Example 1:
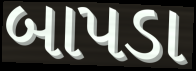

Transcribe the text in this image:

બાપડા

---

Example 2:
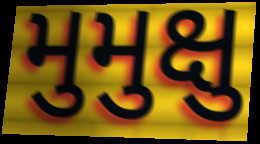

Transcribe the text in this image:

મુમુક્ષુ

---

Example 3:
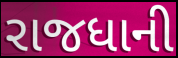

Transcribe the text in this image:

રાજધાની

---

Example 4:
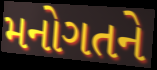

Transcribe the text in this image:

મનોગતને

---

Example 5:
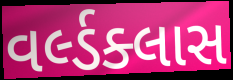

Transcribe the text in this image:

વર્લ્ડક્લાસ